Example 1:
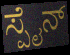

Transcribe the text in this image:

ಸ್ಪೈನ್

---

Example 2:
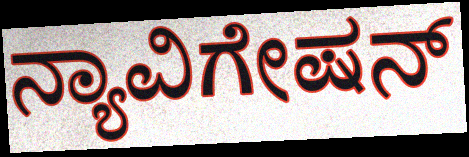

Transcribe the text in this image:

ನ್ಯಾವಿಗೇಷನ್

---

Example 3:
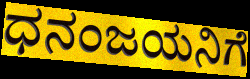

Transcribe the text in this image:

ಧನಂಜಯನಿಗೆ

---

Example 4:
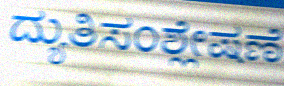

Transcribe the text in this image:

ದ್ಯುತಿಸಂಶ್ಲೇಷಣೆ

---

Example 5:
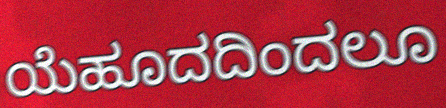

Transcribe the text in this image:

ಯೆಹೂದದಿಂದಲೂ